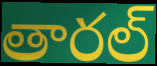
తారల్